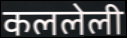
कललेली